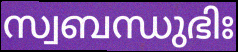
സ്വബന്ധുഭിഃ